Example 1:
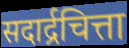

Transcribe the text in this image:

सदार्द्रचित्ता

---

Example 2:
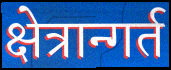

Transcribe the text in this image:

क्षेत्रान्गर्त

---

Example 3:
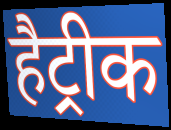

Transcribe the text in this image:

हैट्रीक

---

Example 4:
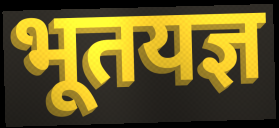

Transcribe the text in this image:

भूतयज्ञ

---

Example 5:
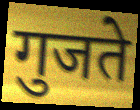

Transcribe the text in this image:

गुजते